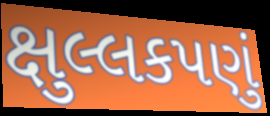
ક્ષુલ્લકપણું